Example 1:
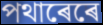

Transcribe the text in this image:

পথাৰেৰে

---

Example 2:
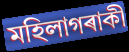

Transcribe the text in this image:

মহিলাগৰাকী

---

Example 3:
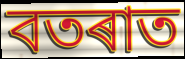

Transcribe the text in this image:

বতৰাত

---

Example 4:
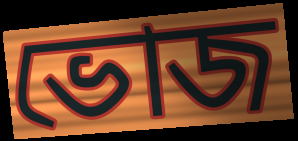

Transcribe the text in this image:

ভোজ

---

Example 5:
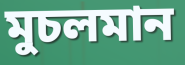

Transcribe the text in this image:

মুচলমান